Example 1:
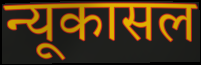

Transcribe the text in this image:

न्यूकासल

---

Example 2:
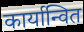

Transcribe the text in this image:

कार्यान्वित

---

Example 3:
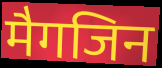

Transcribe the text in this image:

मैगजिन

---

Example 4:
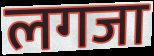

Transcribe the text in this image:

लगजा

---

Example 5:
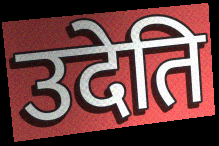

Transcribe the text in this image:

उदेति